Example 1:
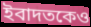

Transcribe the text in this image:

ইবাদতকেও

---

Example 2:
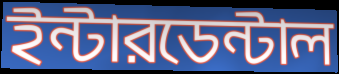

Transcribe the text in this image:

ইন্টারডেন্টাল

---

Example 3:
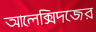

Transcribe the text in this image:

আলেক্সিদজের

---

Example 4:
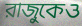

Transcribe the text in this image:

রাজুকেও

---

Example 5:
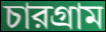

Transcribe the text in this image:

চারগ্রাম